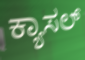
ಕ್ಯಾಸಲ್